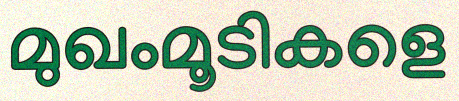
മുഖംമൂടികളെ